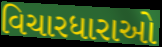
વિચારધારાઓ